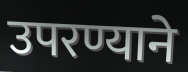
उपरण्याने